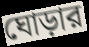
ঘোড়ার